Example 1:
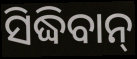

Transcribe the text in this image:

ସିଦ୍ଧିବାନ୍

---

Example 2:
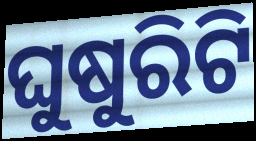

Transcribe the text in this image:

ଘୁଷୁରିଟି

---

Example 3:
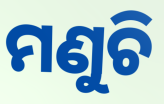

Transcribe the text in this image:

ମଣୁଚି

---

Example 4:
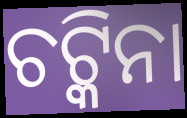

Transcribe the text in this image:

ଚଟ୍କିନା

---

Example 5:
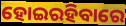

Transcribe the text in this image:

ହୋଇରହିବାରେ